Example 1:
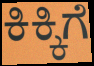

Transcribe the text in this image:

ಕಿಕ್ಕಿಗೆ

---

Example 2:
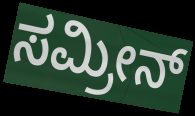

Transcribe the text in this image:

ಸಮ್ರೀನ್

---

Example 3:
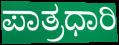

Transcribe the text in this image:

ಪಾತ್ರಧಾರಿ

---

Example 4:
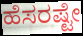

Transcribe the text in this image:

ಹೆಸರಷ್ಟೇ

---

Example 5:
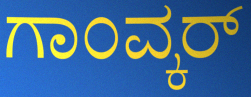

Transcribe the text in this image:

ಗಾಂವ್ಕರ್